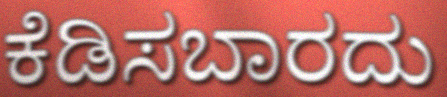
ಕೆಡಿಸಬಾರದು